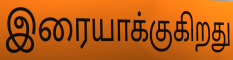
இரையாக்குகிறது